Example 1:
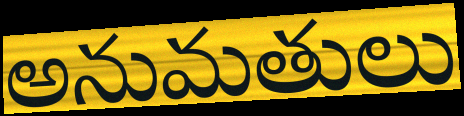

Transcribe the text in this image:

అనుమతులు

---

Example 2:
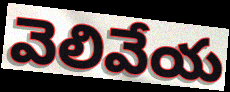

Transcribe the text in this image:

వెలివేయ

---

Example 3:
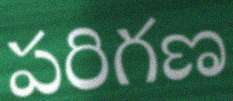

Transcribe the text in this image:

పరిగణ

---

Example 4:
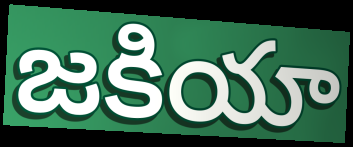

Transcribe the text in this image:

జకియా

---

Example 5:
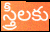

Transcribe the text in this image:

స్త్రీలకు